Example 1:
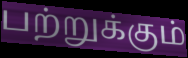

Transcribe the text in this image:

பற்றுக்கும்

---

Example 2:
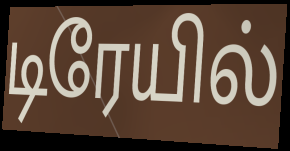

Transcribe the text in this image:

டிரேயில்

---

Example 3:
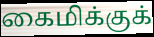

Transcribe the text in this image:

கைமிக்குக்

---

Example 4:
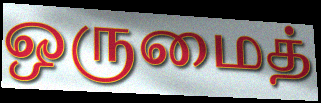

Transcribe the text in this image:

ஒருமைத்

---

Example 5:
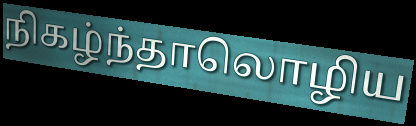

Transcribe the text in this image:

நிகழ்ந்தாலொழிய